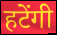
हटेंगी